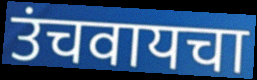
उंचवायचा